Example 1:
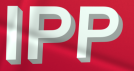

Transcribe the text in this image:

IPP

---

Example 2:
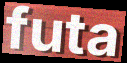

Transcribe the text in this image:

futa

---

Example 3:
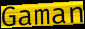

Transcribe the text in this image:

Gaman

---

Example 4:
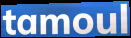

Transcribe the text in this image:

tamoul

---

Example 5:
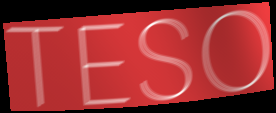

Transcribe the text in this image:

TESO